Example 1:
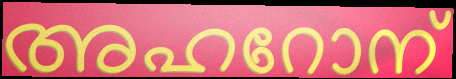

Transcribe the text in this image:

അഹറോന്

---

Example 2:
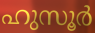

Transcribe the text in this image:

ഹുസൂർ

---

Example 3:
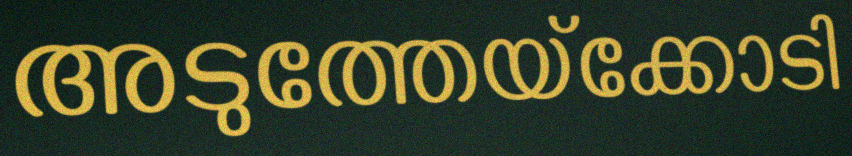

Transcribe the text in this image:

അടുത്തേയ്‌ക്കോടി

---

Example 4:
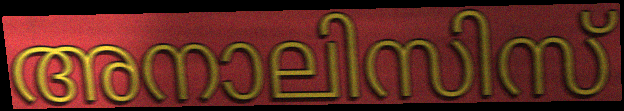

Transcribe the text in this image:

അനാലിസിസ്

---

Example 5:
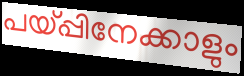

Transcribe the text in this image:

പയ്പ്പിനേക്കാളും